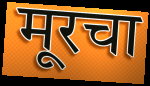
मूरचा